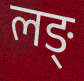
लङ्